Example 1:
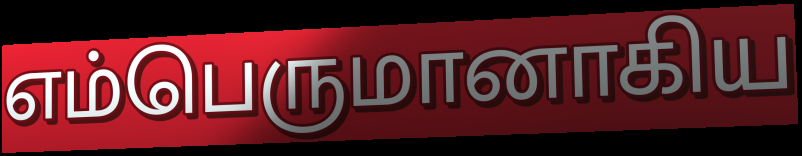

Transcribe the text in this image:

எம்பெருமானாகிய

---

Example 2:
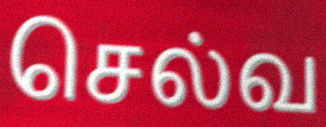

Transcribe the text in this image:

செல்வ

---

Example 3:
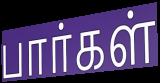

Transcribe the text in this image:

பார்கள்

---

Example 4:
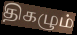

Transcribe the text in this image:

திகழும்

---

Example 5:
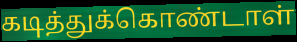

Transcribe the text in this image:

கடித்துக்கொண்டாள்